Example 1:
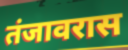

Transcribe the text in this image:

तंजावरास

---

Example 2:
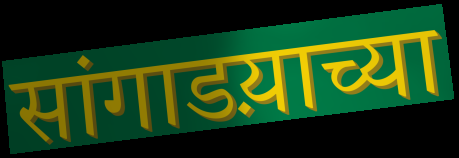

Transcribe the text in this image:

सांगाडय़ाच्या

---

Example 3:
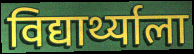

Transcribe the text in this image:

विद्यार्थ्याला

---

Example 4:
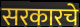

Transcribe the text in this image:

सरकारचे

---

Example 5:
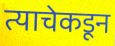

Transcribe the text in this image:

त्याचेकडून